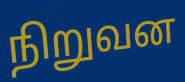
நிறுவன